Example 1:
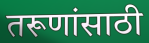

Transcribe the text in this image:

तरूणांसाठी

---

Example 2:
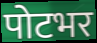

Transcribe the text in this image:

पोटभर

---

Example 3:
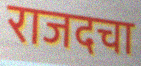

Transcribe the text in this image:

राजदचा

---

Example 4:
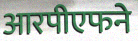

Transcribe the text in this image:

आरपीएफने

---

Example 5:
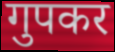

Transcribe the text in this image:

गुपकर